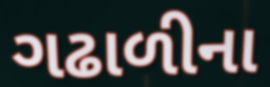
ગઢાળીના